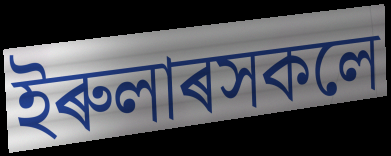
ইৰুলাৰসকলে